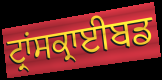
ਟ੍ਰਾਂਸਕ੍ਰਾਈਬਡ